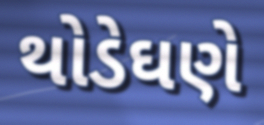
થોડેઘણે